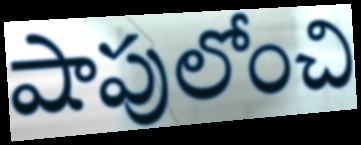
షాపులోంచి